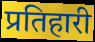
प्रतिहारी